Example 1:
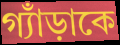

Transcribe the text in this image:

গ্যাঁড়াকে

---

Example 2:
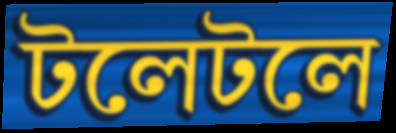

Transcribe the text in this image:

টলেটলে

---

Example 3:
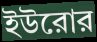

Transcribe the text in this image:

ইউরোর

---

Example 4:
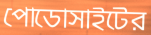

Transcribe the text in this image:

পোডোসাইটের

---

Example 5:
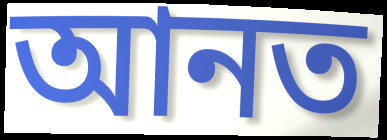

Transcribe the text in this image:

আনত